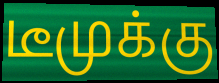
டீமுக்கு